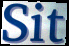
Sit